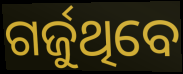
ଗର୍ଜୁଥିବେ